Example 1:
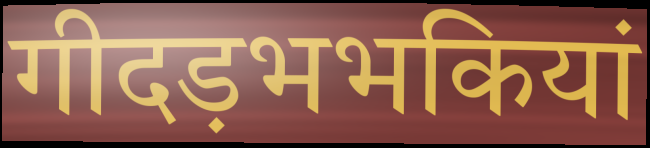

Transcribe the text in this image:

गीदड़भभकियां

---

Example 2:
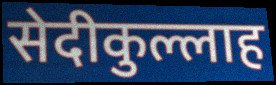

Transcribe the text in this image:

सेदीकुल्लाह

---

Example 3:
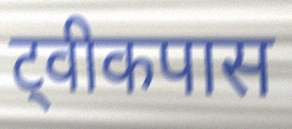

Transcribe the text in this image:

ट्वीकपास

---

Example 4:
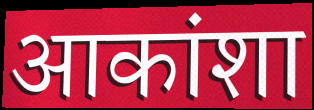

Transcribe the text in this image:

आकांशा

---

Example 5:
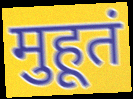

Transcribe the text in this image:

मुहूतं